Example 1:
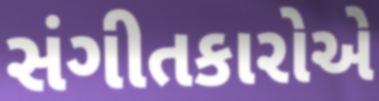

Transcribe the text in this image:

સંગીતકારોએ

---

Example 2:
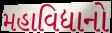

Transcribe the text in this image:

મહાવિદ્યાનો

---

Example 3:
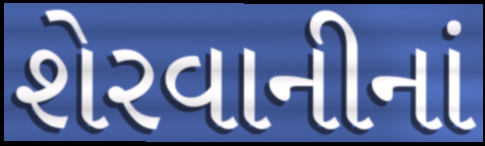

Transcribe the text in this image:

શેરવાનીનાં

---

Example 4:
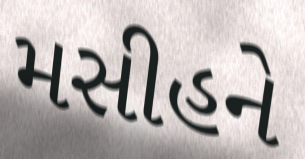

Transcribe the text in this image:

મસીહને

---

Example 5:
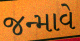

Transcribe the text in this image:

જન્માવે